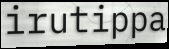
irutippa